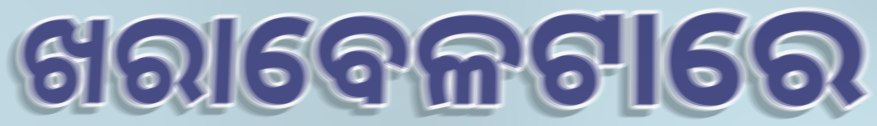
ଖରାବେଳଟାରେ